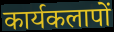
कार्यकलापों